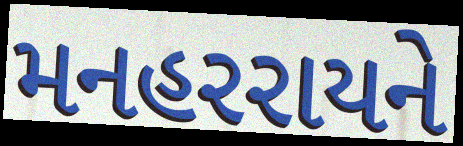
મનહરરાયને